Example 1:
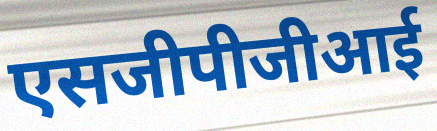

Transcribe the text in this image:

एसजीपीजीआई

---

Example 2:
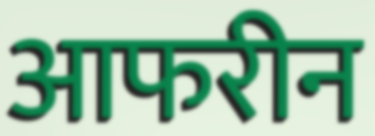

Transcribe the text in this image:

आफरीन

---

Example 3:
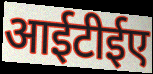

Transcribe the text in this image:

आईटीईए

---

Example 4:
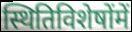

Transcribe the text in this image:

स्थितिविशेषोंमें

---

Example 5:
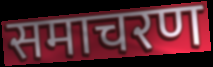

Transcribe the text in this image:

समाचरण